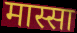
मास्सा